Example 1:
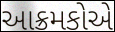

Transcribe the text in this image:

આક્રમકોએ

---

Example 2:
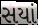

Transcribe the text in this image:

સયાં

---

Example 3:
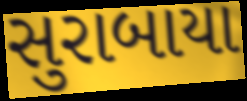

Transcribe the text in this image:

સુરાબાયા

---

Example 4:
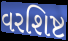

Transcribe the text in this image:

વરશિષ્ટ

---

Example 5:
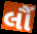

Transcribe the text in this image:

લૌં